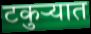
टकुर्‍यात